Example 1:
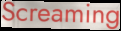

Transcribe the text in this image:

Screaming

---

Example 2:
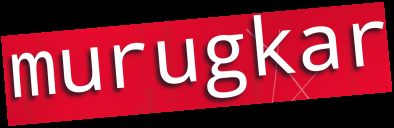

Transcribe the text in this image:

murugkar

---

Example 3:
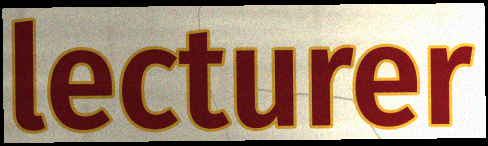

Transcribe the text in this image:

lecturer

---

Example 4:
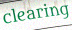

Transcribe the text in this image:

clearing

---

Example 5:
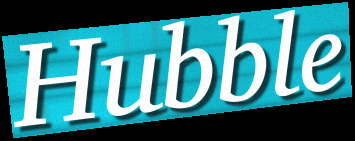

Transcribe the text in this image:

Hubble